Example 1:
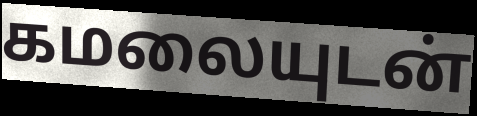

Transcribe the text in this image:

கமலையுடன்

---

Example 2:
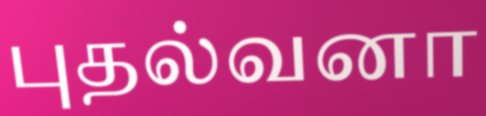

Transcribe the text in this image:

புதல்வனா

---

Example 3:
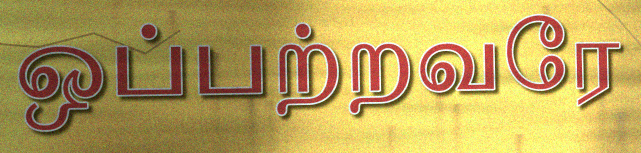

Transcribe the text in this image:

ஒப்பற்றவரே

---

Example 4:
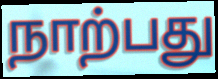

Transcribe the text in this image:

நாற்பது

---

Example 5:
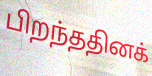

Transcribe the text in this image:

பிறந்ததினக்